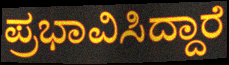
ಪ್ರಭಾವಿಸಿದ್ದಾರೆ